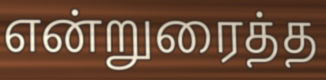
என்றுரைத்த